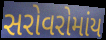
સરોવરોમાંય